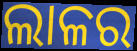
ଲାଳର